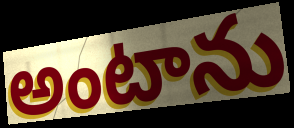
అంటాను